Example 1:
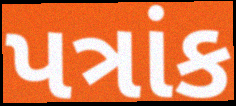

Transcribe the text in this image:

પત્રાંક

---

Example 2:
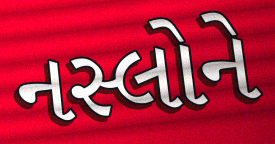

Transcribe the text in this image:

નસ્લોને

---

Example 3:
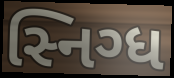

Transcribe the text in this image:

સ્નિગ્ધ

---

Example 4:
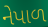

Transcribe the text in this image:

નેપાળ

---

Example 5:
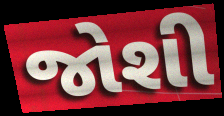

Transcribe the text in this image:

જોશી